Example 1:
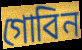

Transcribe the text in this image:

গোবিন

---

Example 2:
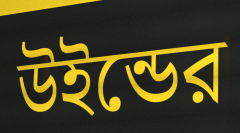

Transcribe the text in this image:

উইন্ডের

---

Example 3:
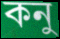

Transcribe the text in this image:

কনু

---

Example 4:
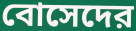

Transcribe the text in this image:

বোসেদের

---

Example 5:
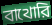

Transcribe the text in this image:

বাথোরি